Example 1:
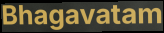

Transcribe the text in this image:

Bhagavatam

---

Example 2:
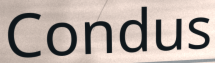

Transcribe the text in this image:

Condus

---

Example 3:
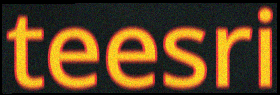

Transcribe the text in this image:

teesri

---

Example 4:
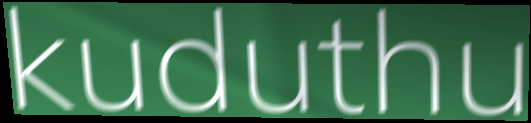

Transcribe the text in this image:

kuduthu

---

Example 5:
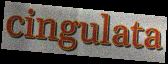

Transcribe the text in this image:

cingulata